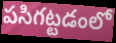
పసిగట్టడంలో